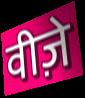
वीज़े